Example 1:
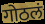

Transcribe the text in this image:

गोठलं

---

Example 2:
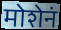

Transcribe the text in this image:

मोशेनं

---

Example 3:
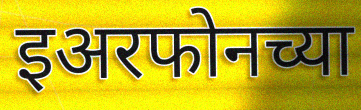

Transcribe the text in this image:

इअरफोनच्या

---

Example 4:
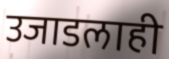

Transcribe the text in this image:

उजाडलाही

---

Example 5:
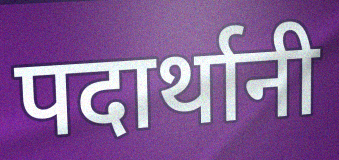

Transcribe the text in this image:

पदार्थानी